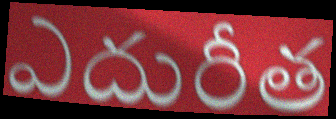
ఎదురీత